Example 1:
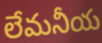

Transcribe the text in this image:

లేమనీయ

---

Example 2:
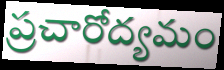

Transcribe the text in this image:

ప్రచారోద్యమం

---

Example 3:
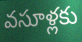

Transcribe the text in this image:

వసూళ్లకు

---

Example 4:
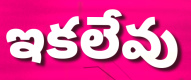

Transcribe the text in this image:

ఇకలేవు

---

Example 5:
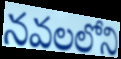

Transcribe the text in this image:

నవలలోని